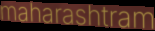
maharashtram